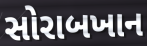
સોરાબખાન